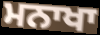
ਮਨਾਖਾ